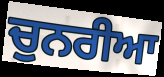
ਚੁਨਰੀਆ